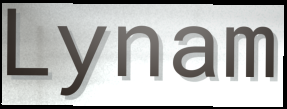
Lynam